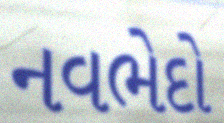
નવભેદો